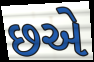
છએ